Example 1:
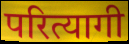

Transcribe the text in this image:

परित्यागी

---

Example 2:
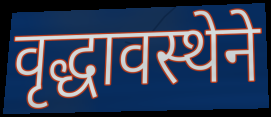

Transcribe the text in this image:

वृद्धावस्थेने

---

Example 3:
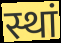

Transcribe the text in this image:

स्थां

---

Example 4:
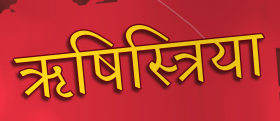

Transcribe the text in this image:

ऋषिस्त्रिया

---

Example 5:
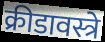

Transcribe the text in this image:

क्रीडावस्त्रे